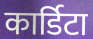
कार्डिटा